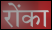
रोंका